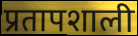
प्रतापशाली